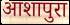
आशापुरा